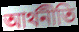
আর্থনীতি